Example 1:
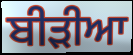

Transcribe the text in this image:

ਬੀੜੀਆ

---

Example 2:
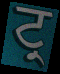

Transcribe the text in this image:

ਟ੍ਰ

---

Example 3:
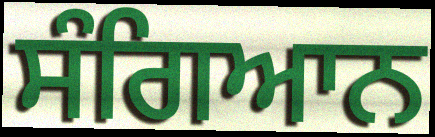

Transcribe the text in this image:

ਸੰਗਿਆਨ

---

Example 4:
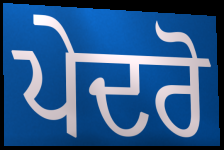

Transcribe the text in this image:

ਪੇਦਰੋ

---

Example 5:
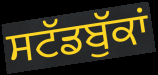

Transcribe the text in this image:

ਸਟੱਡਬੁੱਕਾਂ